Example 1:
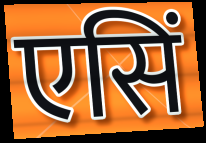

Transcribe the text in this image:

एसिं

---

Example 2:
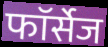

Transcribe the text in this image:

फॉर्सेज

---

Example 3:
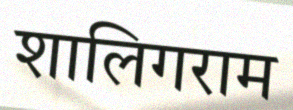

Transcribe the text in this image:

शालिगराम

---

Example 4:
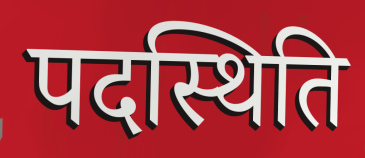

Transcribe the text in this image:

पदस्थिति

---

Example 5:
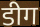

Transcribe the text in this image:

डीग